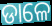
ଡାଳେ